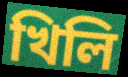
খিলি